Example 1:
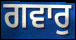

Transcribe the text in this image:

ਗਵਾਰੁ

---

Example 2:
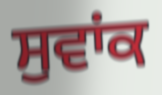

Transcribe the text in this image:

ਸੁਵਾਂਕ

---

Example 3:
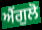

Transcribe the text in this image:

ਐਂਗੁਲੋ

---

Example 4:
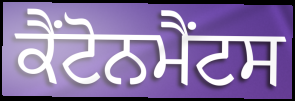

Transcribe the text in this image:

ਕੈਂਟੋਨਮੈਂਟਸ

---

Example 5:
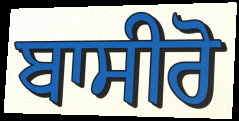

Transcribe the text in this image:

ਬਾਸੀਰੋ